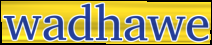
wadhawe